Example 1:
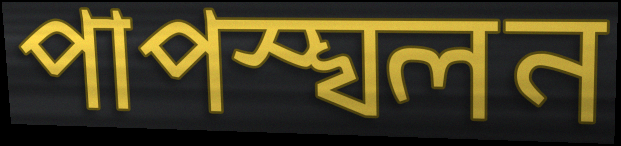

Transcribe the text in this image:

পাপস্খলন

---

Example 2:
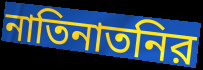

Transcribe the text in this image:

নাতিনাতনির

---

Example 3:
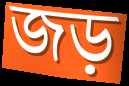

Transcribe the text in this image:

জড়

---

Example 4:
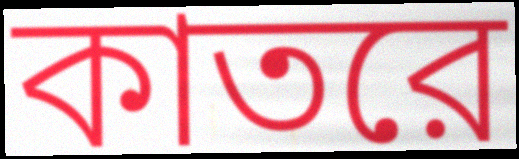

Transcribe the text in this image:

কাতরে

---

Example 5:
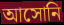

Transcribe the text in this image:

আসোনি